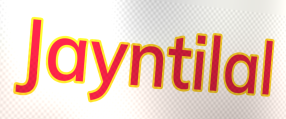
Jayntilal